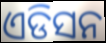
ଏଡିସନ